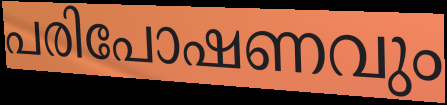
പരിപോഷണവും